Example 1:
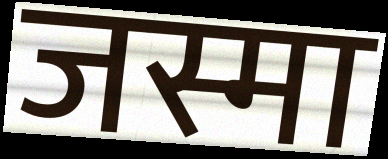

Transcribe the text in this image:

जस्मा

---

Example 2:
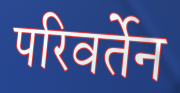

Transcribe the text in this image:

परिवर्तेन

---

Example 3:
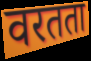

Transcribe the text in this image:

वरतता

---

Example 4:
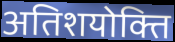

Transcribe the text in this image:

अतिशयोक्ति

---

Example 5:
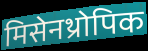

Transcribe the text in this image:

मिसेनथ्रोपिक